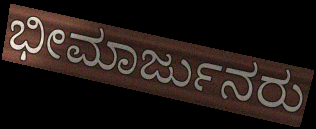
ಭೀಮಾರ್ಜುನರು